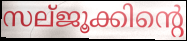
സല്ജൂക്കിന്റെ